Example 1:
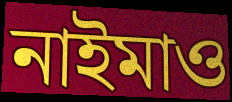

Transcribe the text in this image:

নাইমাও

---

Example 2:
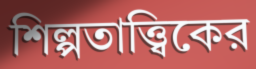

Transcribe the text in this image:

শিল্পতাত্ত্বিকের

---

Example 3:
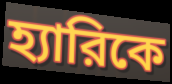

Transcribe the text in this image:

হ্যারিকে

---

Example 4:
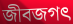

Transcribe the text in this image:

জীবজগৎ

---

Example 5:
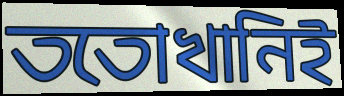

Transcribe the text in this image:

ততোখানিই